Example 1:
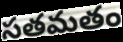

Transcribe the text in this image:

సతమతం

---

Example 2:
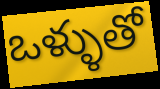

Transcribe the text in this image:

ఒళ్ళుతో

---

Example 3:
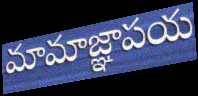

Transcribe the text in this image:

మామాజ్ఞాపయ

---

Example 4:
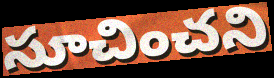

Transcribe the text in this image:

సూచించని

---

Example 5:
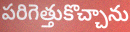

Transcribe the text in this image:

పరిగెత్తుకొచ్చాను